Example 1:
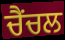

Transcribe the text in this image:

ਚੈਂਚਲ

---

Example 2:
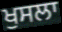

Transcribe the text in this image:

ਖੁਸਲਾ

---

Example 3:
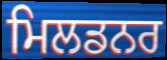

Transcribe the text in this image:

ਮਿਲਡਨਰ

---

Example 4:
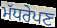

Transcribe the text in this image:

ਮੱਧਰੇਪਣ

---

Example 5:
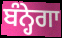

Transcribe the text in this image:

ਬੰਨ੍ਹੇਗਾ